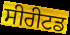
ਸੀਰੀਟਡ